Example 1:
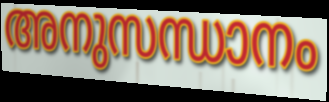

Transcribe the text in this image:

അനുസന്ധാനം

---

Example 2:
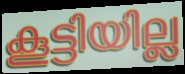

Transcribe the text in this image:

കൂട്ടിയില്ല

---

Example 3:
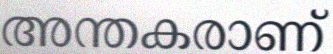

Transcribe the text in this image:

അന്തകരാണ്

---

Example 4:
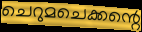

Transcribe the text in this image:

ചെറുമചെക്കന്റെ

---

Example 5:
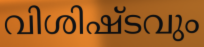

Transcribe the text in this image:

വിശിഷ്ടവും